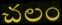
చలం